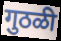
गुठळी